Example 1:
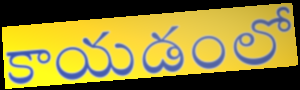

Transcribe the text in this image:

కాయడంలో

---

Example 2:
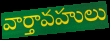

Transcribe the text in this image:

వార్తావహులు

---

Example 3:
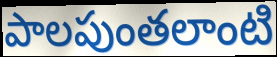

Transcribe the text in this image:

పాలపుంతలాంటి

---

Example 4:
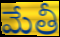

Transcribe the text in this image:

మేతీ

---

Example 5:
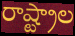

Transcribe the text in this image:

రాష్ట్రాల